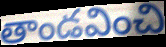
తాండవించి